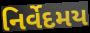
નિર્વેદમય